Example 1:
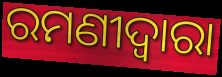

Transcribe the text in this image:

ରମଣୀଦ୍ୱାରା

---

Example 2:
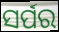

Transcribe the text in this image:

ସର୍ପର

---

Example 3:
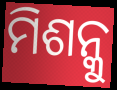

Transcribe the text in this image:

ମିଶନ୍କୁ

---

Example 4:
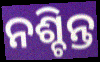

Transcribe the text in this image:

ନଶ୍ଚିନ୍ତ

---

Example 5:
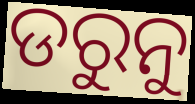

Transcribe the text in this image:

ଡରୁନୁ